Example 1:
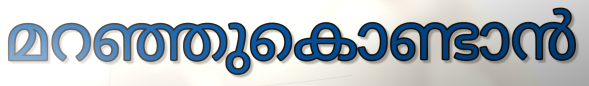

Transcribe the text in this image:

മറഞ്ഞുകൊണ്ടാൻ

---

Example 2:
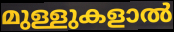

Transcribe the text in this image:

മുള്ളുകളാൽ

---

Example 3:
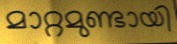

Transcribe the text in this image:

മാറ്റമുണ്ടായി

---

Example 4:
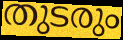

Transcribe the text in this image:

തുടരും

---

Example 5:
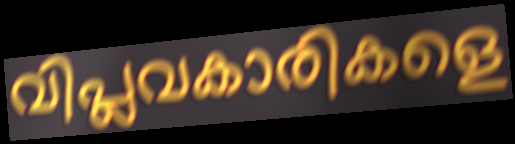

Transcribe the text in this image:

വിപ്ലവകാരികളെ